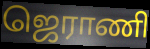
ஜெராணி